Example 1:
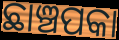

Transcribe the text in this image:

ଛାଞ୍ଚପକା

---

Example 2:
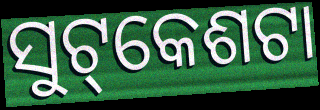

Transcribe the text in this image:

ସୁଟ୍‌କେଶଟା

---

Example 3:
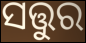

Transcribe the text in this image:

ସତ୍ତୁର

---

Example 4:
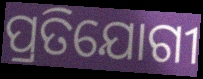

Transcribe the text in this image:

ପ୍ରତିଯୋଗୀ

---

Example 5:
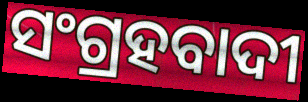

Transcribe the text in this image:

ସଂଗ୍ରହବାଦୀ